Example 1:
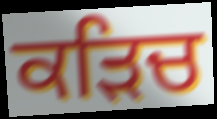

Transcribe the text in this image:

ਕੜਿਚ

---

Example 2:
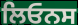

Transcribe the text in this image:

ਲਿਓਨਸ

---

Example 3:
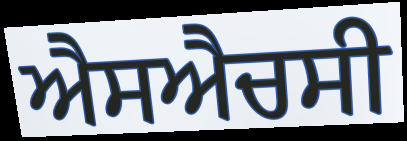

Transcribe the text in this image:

ਐਸਐਚਸੀ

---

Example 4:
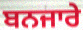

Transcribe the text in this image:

ਬਨਜਾਰੇ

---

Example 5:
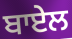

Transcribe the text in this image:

ਬਾਏਲ